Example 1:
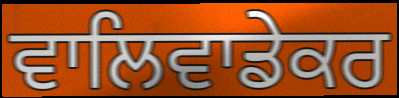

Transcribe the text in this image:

ਵਾਲਿਵਾਡੇਕਰ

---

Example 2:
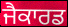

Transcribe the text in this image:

ਜੈਕਾਰਡ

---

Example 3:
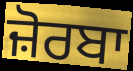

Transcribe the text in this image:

ਜ਼ੋਰਬਾ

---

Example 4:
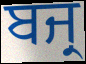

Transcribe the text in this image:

ਬਜ੍ਰ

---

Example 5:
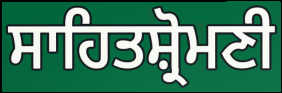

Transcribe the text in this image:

ਸਾਹਿਤਸ਼੍ਰੋਮਣੀ